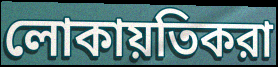
লোকায়তিকরা